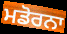
ਮਡੋਰਨਾ